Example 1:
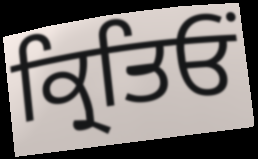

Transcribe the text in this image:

ਕ੍ਰਿਤਿਓਂ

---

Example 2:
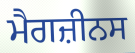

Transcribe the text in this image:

ਮੈਗਜ਼ੀਨਸ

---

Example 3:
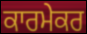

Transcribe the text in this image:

ਕਾਰਮੇਕਰ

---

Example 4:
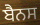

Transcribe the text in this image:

ਬੈਨਸ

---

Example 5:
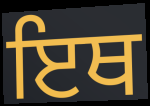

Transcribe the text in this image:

ਇਥ